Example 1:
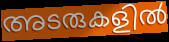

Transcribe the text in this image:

അടരുകളിൽ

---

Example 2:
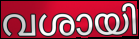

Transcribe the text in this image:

വശായി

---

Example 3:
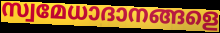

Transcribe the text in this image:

സ്വമേധാദാനങ്ങളെ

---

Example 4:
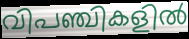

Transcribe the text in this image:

വിപഞ്ചികളിൽ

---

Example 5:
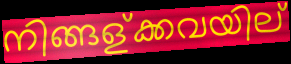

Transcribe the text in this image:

നിങ്ങള്ക്കവയില്